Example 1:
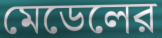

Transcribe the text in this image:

মেডেলের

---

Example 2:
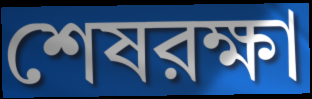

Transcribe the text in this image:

শেষরক্ষা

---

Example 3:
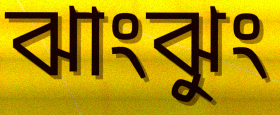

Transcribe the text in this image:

ঝাংঝুং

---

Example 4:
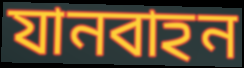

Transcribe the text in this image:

যানবাহন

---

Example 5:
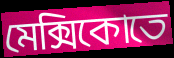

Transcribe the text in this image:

মেক্সিকোতে